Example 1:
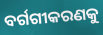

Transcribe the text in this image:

ବର୍ଗଗୀକରଣକୁ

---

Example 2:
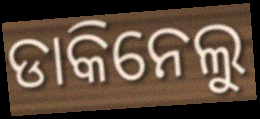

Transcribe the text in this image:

ଡାକିନେଲୁ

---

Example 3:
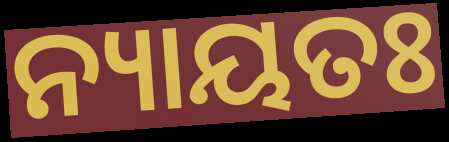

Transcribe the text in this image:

ନ୍ୟାୟତଃ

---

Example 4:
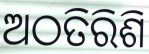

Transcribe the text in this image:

ଅଠତିରିଶି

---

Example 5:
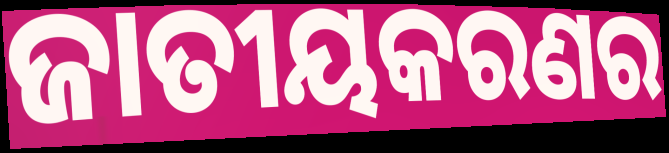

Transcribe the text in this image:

ଜାତୀୟକରଣର